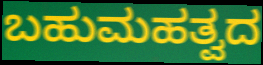
ಬಹುಮಹತ್ವದ